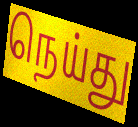
நெய்து